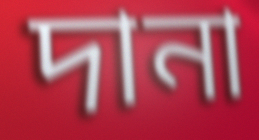
দানা